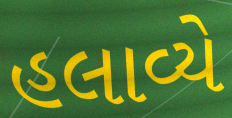
હલાવ્યે